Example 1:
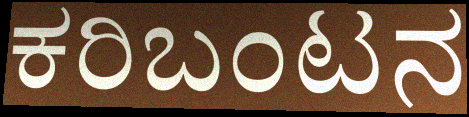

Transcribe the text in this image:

ಕರಿಬಂಟನ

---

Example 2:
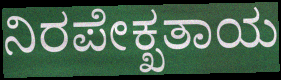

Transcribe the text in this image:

ನಿರಪೇಕ್ಖತಾಯ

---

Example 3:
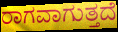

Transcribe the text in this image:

ರಾಗವಾಗುತ್ತದೆ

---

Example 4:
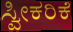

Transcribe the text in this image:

ಸ್ವೀಕರಿಕೆ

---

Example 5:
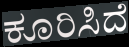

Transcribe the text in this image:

ಕೂರಿಸಿದೆ